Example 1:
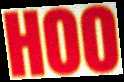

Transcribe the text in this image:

HOO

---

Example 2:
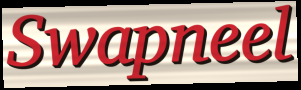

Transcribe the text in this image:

Swapneel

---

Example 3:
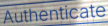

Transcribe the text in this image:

Authenticate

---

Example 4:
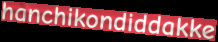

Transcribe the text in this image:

hanchikondiddakke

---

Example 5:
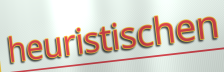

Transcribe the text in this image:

heuristischen